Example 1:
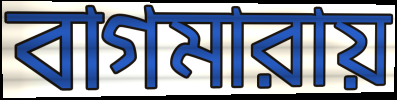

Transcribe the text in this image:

বাগমারায়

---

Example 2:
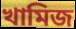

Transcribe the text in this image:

খামিজ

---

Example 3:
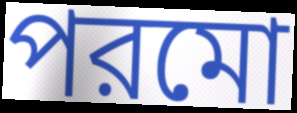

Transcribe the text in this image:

পরমো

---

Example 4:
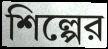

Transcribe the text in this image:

শিল্পের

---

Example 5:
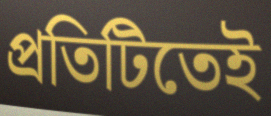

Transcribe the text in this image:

প্রতিটিতেই